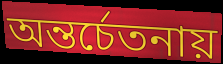
অন্তর্চেতনায়